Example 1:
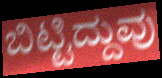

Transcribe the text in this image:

ಬಿಟ್ಟಿದ್ದುವು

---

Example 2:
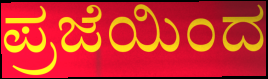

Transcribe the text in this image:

ಪ್ರಜೆಯಿಂದ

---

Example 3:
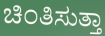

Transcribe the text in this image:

ಚಿಂತಿಸುತ್ತಾ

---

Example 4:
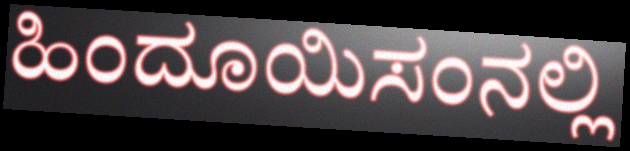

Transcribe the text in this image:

ಹಿಂದೂಯಿಸಂನಲ್ಲಿ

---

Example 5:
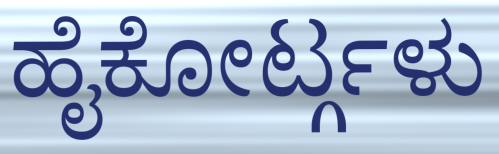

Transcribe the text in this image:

ಹೈಕೋರ್ಟ್ಗಳು